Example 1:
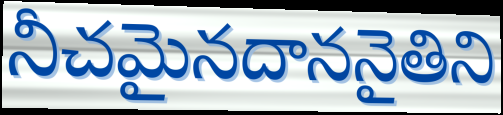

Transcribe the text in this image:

నీచమైనదాననైతిని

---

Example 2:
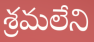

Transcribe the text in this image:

శ్రమలేని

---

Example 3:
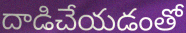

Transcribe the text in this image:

దాడిచేయడంతో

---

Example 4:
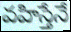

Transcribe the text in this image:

వహిస్తేనే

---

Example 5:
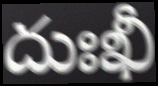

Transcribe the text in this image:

దుఃఖీ